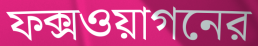
ফক্সওয়াগনের